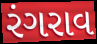
રંગરાવ